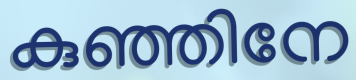
കുഞ്ഞിനേ